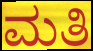
ಮತಿ